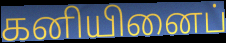
கனியினைப்